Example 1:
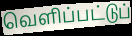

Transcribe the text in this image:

வெளிப்பட்டுப்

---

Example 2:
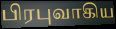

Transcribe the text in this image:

பிரபுவாகிய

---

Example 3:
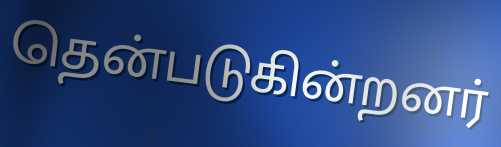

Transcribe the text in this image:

தென்படுகின்றனர்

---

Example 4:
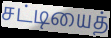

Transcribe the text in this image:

சட்டியைத்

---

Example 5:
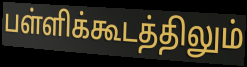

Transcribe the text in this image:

பள்ளிக்கூடத்திலும்